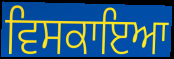
ਵਿਸਕਾਇਆ